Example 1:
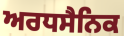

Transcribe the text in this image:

ਅਰਧਸੈਨਿਕ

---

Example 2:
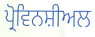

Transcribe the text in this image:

ਪ੍ਰੋਵਿਨਸ਼ੀਅਲ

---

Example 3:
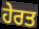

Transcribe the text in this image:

ਹੇਰਤ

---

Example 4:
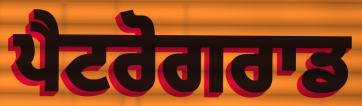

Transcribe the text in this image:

ਪੈਟਰੋਗਰਾਡ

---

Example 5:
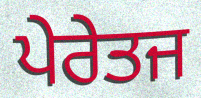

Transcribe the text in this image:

ਪੇਰੇਤਜ